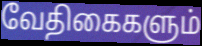
வேதிகைகளும்